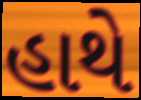
હાથે